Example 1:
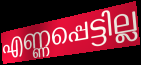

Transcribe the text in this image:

എണ്ണപ്പെട്ടില്ല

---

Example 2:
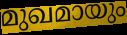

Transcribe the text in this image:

മുഖമായും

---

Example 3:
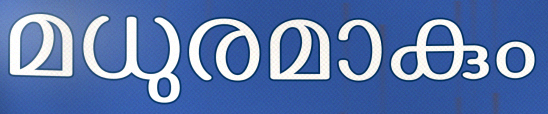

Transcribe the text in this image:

മധുരമാകും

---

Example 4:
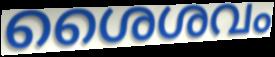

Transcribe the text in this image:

ശൈശവം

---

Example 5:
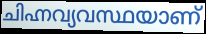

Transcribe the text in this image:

ചിഹ്നവ്യവസ്ഥയാണ്